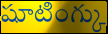
షూటింగ్కు